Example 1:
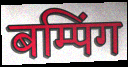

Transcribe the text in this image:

बम्पिंग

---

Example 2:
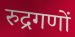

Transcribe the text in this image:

रुद्रगणों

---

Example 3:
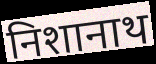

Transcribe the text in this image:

निशानाथ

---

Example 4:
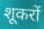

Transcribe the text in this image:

शूकरों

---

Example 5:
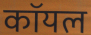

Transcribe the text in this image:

कॉयल